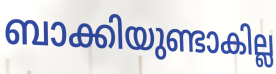
ബാക്കിയുണ്ടാകില്ല